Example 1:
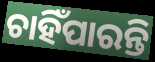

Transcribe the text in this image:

ଚାହିଁପାରନ୍ତି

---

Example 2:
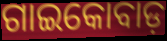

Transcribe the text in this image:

ଗାଇକୋବାଡ଼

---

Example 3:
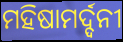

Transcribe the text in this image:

ମହିଷାମର୍ଦ୍ଦନୀ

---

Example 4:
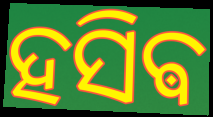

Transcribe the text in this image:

ହସିଵ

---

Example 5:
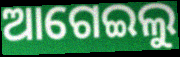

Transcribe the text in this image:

ଆଗେଇଲୁ